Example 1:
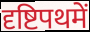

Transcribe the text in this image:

दृष्टिपथमें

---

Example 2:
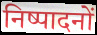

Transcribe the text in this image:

निष्पादनों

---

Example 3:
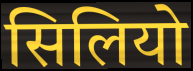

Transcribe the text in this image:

सिलियो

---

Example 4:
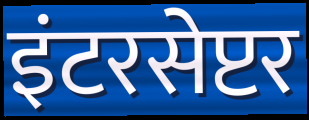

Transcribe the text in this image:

इंटरसेप्टर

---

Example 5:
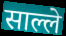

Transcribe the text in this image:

साल्ले